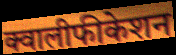
क्वालीफीकेशन